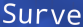
Surve